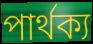
পার্থক্য